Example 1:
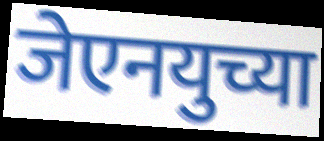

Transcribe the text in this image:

जेएनयुच्या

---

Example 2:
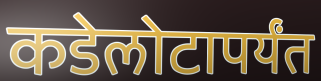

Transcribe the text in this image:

कडेलोटापर्यंत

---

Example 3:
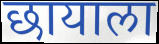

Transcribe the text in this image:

छायाला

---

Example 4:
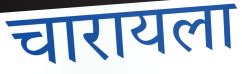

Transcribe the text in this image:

चारायला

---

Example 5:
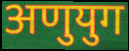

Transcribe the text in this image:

अणुयुग